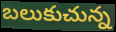
బలుకుచున్న